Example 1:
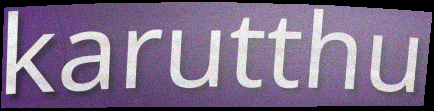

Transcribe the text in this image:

karutthu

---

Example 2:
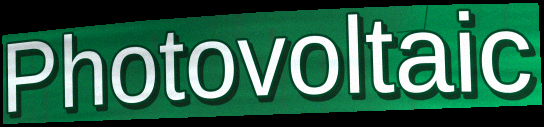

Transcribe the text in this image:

Photovoltaic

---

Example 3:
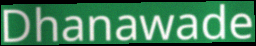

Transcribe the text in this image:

Dhanawade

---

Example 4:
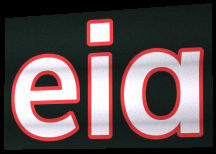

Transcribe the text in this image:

eia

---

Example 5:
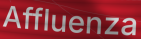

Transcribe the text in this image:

Affluenza